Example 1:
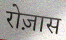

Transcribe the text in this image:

रोज़ास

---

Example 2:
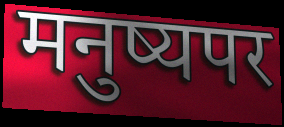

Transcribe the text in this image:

मनुष्यपर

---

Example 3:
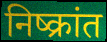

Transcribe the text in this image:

निष्क्रांत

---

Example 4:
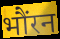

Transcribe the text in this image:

भौंरन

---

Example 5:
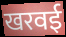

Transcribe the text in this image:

खरवई